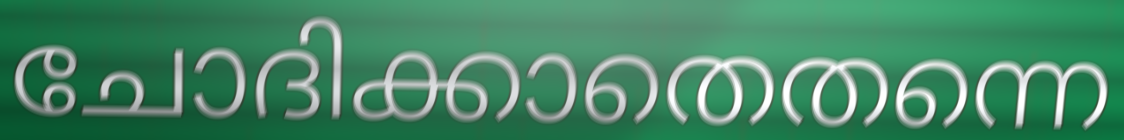
ചോദിക്കാതെതന്നെ